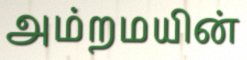
அம்றமயின்